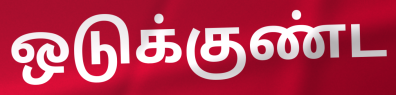
ஒடுக்குண்ட